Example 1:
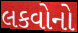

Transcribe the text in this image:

લકવોનો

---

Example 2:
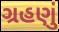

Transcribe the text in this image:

ગ્રહણું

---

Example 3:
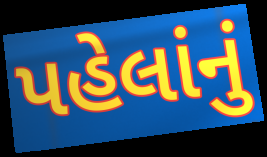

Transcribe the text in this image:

પહેલાંનું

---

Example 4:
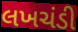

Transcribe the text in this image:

લખચંડી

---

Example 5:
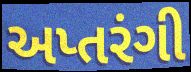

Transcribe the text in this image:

અપ્તરંગી